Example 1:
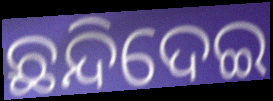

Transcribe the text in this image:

ଛନ୍ଦିଦେଇ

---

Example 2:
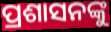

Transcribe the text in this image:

ପ୍ରଶାସନଙ୍କୁ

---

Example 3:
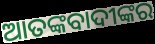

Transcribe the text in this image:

ଆତଙ୍କବାଦୀଙ୍କର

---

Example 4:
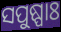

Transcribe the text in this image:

ସପୁଷ୍ପାଃ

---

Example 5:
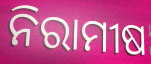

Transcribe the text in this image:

ନିରାମୀଷ